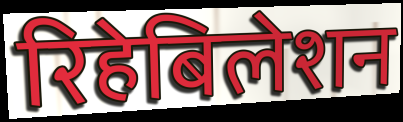
रिहेबिलेशन